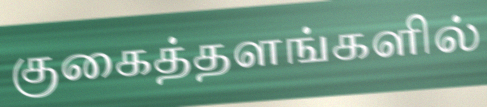
குகைத்தளங்களில்